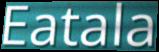
Eatala